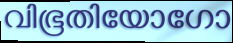
വിഭൂതിയോഗോ